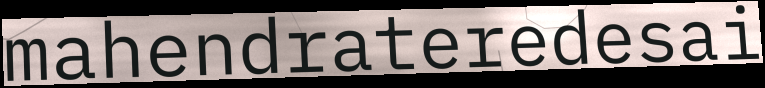
mahendrateredesai